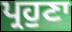
ਪ੍ਰਹੁਣਾ